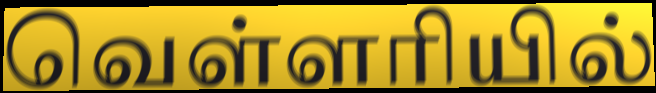
வெள்ளரியில்